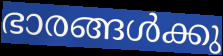
ഭാരങ്ങൾക്കു